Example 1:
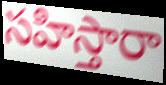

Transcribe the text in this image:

సహిస్తారా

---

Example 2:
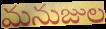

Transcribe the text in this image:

మనుజుల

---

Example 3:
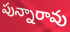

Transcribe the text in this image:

పున్నారావు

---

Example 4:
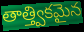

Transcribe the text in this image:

తాత్త్వికమైన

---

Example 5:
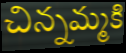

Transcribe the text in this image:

చిన్నమ్మకి